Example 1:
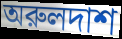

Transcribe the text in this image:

অরুলদাশ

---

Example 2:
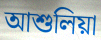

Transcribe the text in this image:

আশুলিয়া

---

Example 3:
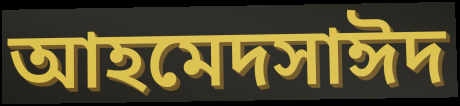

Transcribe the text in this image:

আহমেদসাঈদ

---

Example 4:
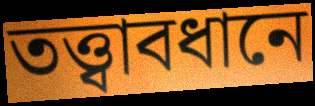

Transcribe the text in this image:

তত্ত্বাবধানে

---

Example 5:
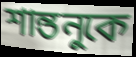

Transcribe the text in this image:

শান্তনুকে